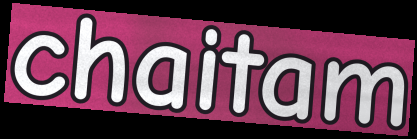
chaitam